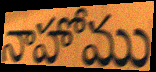
నాహోము